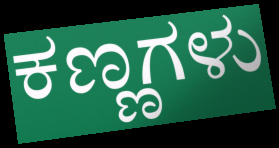
ಕಣ್ಣಗಳು